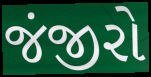
જંજીરો